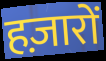
हज़ारों